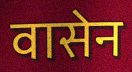
वासेन